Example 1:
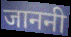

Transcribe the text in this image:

जाननी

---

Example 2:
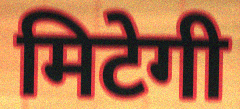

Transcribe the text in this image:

मिटेगी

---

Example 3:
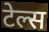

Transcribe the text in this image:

टेल्स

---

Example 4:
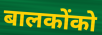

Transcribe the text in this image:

बालकोंको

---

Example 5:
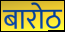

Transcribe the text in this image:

बारोठ